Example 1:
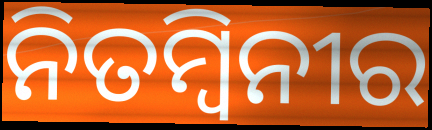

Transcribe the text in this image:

ନିତମ୍ବିନୀର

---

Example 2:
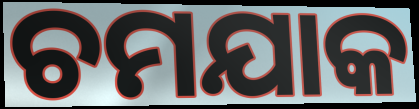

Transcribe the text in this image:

ଚମଯାକ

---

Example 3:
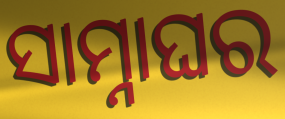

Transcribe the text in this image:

ସାମ୍ନାଘର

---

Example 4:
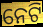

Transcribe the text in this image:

ନେଟି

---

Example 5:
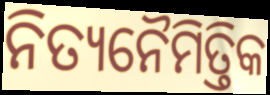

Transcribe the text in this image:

ନିତ୍ୟନୈମିତ୍ତିକ